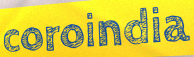
coroindia